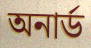
অনার্ড